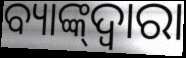
ବ୍ୟାଙ୍କ୍‌ଦ୍ୱାରା